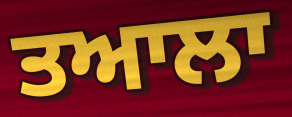
ਤਆਲਾ